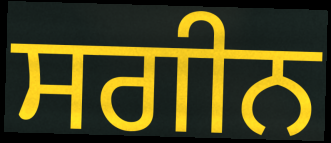
ਸਗੀਨ